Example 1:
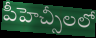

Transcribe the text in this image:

పీహెచ్సీలలో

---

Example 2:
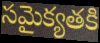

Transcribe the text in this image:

సమైక్యతకి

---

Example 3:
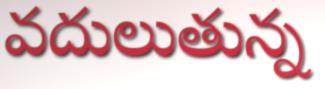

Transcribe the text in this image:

వదులుతున్న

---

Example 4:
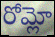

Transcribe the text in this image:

రోమ్లో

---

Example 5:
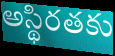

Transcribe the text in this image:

అస్థిరతకు